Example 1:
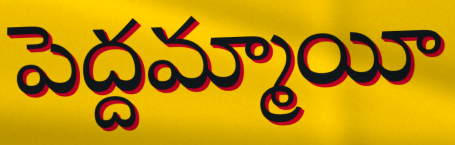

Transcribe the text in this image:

పెద్దమ్మాయీ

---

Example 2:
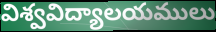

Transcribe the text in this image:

విశ్వవిద్యాలయములు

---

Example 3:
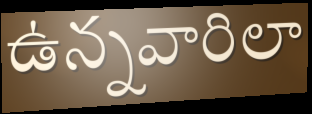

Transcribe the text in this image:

ఉన్నవారిలా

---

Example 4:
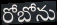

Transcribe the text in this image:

రోబోను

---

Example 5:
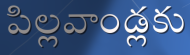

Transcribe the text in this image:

పిల్లవాండ్లకు